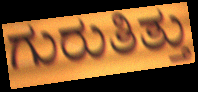
ಗುರುತಿತ್ತು